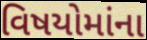
વિષયોમાંના